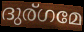
ദുര്ഗമേ